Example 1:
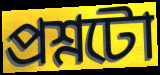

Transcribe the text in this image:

প্ৰশ্নটো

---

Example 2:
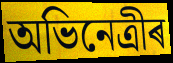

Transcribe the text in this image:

অভিনেত্ৰীৰ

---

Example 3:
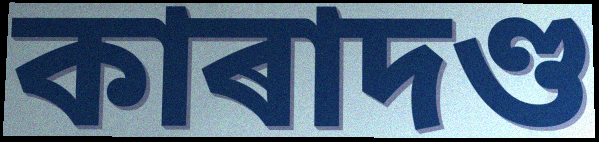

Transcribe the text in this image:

কাৰাদণ্ড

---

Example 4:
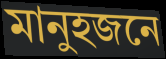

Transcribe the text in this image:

মানুহজনে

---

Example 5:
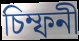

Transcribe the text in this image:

চিম্ফনী